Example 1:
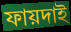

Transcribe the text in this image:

ফায়দাই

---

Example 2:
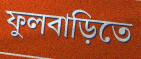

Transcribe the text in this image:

ফুলবাড়িতে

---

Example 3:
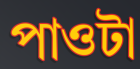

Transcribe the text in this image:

পাওটা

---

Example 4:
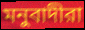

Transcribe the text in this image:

মনুবাদীরা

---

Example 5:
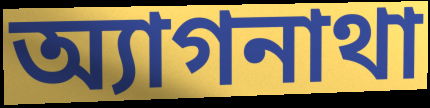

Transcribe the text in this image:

অ্যাগনাথা